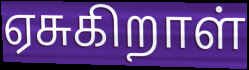
ஏசுகிறாள்